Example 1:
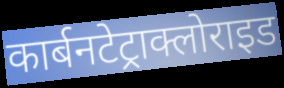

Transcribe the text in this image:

कार्बनटेट्राक्लोराइड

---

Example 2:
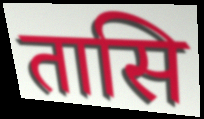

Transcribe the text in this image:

तासि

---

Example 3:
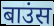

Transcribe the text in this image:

बाउंस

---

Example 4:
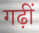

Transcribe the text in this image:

गढ़ीं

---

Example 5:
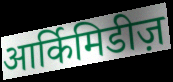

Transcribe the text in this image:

आर्किमिडीज़